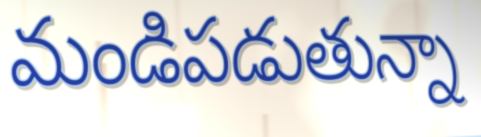
మండిపడుతున్నా